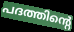
പദത്തിന്റെ